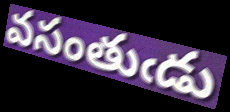
వసంతుఁడు